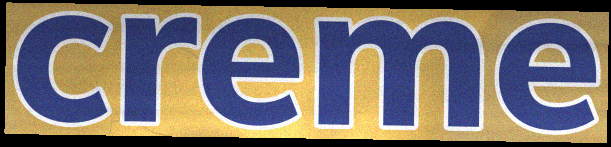
creme